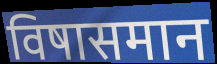
विषासमान